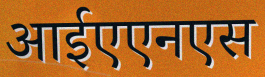
आईएएनएस